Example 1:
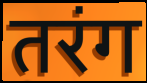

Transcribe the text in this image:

तरंग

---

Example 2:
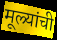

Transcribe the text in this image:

मूल्यांची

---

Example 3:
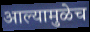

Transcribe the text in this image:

आल्यामुळेच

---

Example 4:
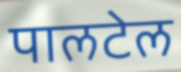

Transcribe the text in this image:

पालटेल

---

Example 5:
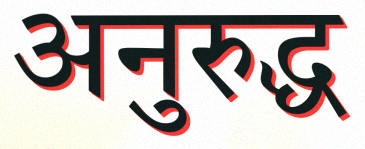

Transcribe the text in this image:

अनुरुद्ध